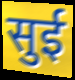
सुई